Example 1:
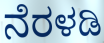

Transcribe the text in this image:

ನೆರಳಡಿ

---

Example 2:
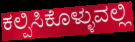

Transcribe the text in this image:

ಕಲ್ಪಿಸಿಕೊಳ್ಳುವಲ್ಲಿ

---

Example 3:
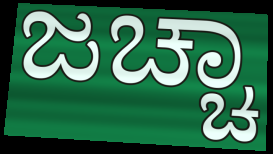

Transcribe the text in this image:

ಜಚ್ಚಾ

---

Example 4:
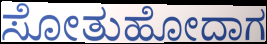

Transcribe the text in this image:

ಸೋತುಹೋದಾಗ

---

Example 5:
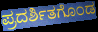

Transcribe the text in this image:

ಪ್ರದರ್ಶಿತಗೊಂಡ